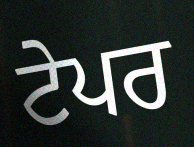
ਟੇਪਰ